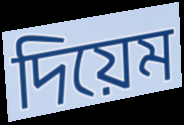
দিয়েম